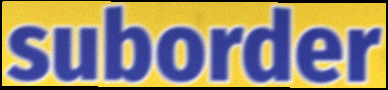
suborder